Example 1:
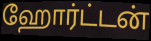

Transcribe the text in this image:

ஹோர்ட்டன்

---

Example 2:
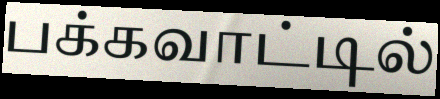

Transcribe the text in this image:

பக்கவாட்டில்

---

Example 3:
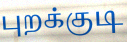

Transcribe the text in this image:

புறக்குடி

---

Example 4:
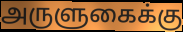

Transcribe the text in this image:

அருளுகைக்கு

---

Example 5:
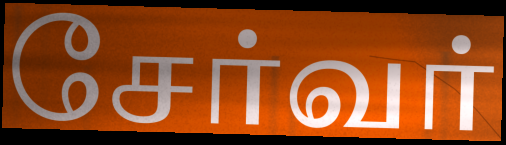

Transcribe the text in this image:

சேர்வர்